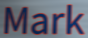
Mark